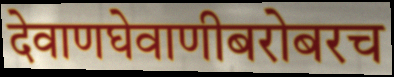
देवाणघेवाणीबरोबरच